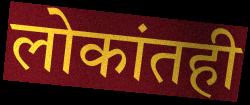
लोकांतही